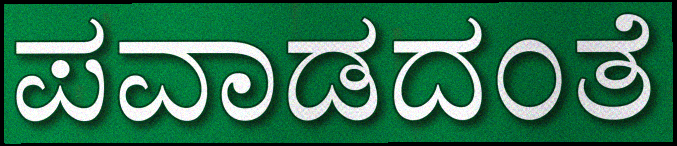
ಪವಾಡದಂತೆ